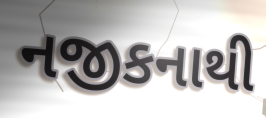
નજીકનાથી